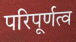
परिपूर्णत्व